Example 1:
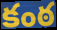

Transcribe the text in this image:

కంఠ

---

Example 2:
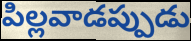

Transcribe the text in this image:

పిల్లవాడప్పుడు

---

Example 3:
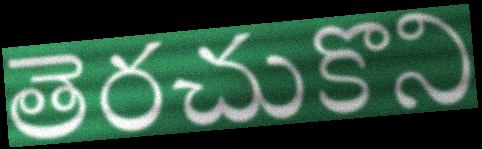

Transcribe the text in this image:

తెరచుకొని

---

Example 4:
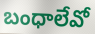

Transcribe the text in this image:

బంధాలేవో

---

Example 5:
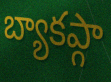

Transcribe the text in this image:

బ్యాకప్గా